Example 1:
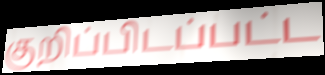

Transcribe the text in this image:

குறிப்பிடப்பட்ட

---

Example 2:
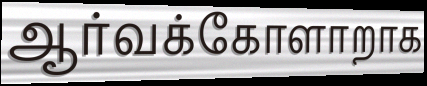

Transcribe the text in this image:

ஆர்வக்கோளாறாக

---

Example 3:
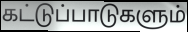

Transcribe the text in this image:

கட்டுப்பாடுகளும்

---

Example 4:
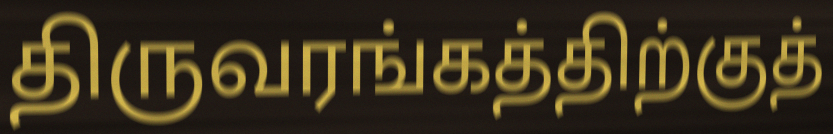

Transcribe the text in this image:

திருவரங்கத்திற்குத்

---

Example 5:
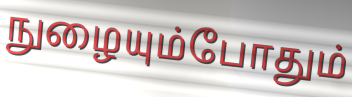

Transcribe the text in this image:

நுழையும்போதும்